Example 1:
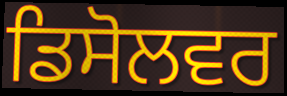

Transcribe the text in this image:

ਡਿਸੋਲਵਰ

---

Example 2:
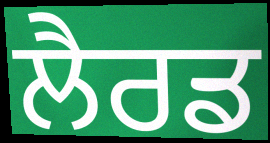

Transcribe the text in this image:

ਲੈਰਡ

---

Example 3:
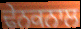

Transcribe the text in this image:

ਢੇਨਕਨਾਲ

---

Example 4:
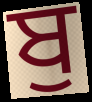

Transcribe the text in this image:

ਬੁ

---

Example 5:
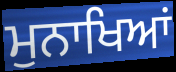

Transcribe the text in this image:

ਮੁਨਾਖਿਆਂ